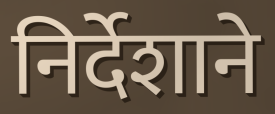
निर्देशाने